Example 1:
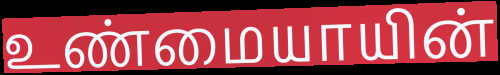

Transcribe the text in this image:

உண்மையாயின்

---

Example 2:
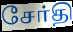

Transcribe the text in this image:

சேர்தி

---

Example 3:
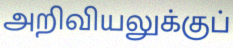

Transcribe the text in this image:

அறிவியலுக்குப்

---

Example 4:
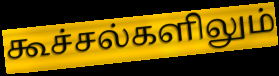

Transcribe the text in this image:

கூச்சல்களிலும்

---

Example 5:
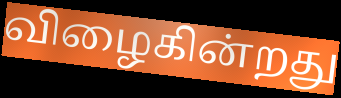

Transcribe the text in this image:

விழைகின்றது